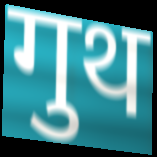
गुथ